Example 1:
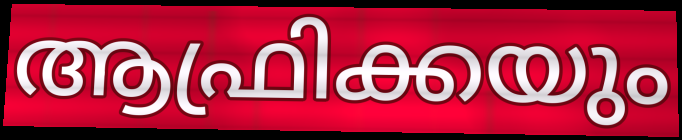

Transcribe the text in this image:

ആഫ്രിക്കയും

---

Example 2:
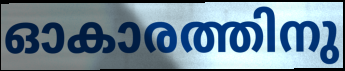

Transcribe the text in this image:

ഓകാരത്തിനു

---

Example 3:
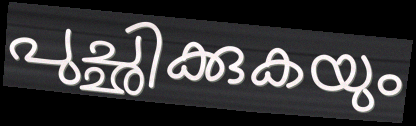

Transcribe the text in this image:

പുച്ഛിക്കുകയും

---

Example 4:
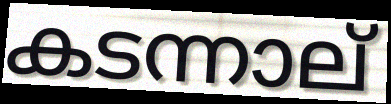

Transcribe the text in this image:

കടന്നാല്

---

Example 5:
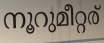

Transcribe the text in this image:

നൂറുമീറ്റര്